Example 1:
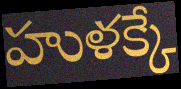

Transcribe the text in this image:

హుళక్కే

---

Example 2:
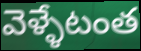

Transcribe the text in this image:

వెళ్ళేటంత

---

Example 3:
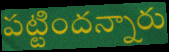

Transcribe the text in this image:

పట్టిందన్నారు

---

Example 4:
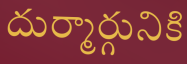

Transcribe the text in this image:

దుర్మార్గునికి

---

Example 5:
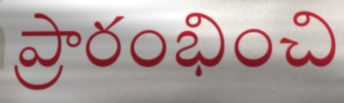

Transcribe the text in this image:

ప్రారంభించి